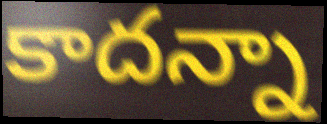
కాదన్నా